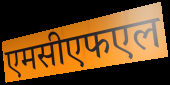
एमसीएफएल